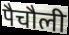
पैचौली